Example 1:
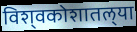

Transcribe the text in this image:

विश्वकोशातल्या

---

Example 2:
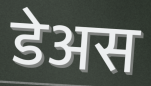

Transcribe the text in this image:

डेअस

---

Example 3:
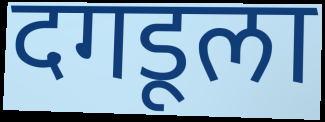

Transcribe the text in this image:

दगडूला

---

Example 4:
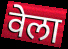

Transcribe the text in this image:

वेला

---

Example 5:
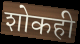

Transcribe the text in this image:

शोकही